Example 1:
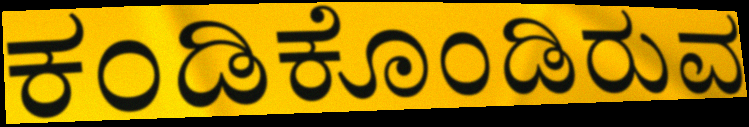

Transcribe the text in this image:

ಕಂಡಿಕೊಂಡಿರುವ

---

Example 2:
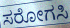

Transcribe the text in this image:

ಸರೋಗಸಿ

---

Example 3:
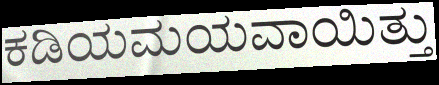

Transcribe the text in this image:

ಕಡಿಯಮಯವಾಯಿತ್ತು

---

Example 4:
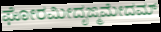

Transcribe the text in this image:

ಘೋರಮೀದೃಙ್ಮಮೇದಮ್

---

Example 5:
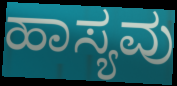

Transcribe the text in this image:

ಹಾಸ್ಯವು